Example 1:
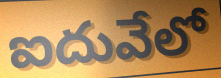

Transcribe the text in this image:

ఐదువేలో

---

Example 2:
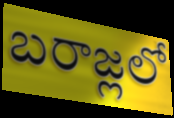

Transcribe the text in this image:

బరాజ్లలో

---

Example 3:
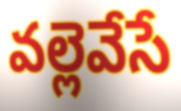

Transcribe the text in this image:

వల్లెవేసే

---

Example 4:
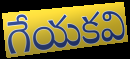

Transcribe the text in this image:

గేయకవి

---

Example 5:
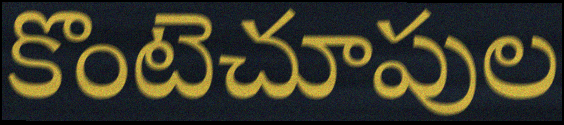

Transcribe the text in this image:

కొంటెచూపుల